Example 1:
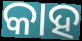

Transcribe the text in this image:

କାହ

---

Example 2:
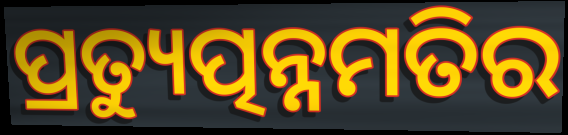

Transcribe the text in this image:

ପ୍ରତ୍ୟୁତ୍ପନ୍ନମତିର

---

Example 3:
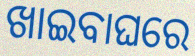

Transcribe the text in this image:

ଖାଇବାଘରେ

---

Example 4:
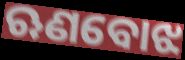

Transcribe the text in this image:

ଋଣବୋଝ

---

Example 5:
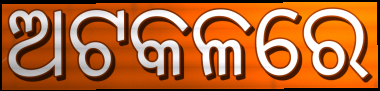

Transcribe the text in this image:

ଅଟକଳରେ